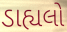
ડાહ્યલો